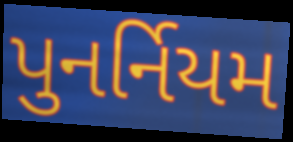
પુનર્નિયમ